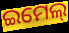
ଇମେଲ୍